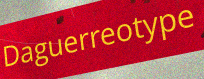
Daguerreotype